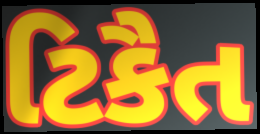
ટિકૈત